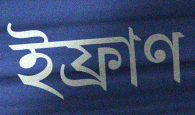
ইফ্ৰাণ